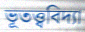
ভূতত্ত্ববিদ্যা